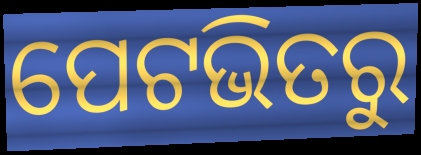
ପେଟଭିତରୁ